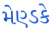
મેણ્ડકે